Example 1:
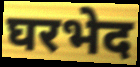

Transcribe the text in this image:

घरभेद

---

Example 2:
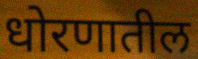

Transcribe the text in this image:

धोरणातील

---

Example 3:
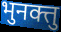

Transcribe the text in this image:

भुनक्तु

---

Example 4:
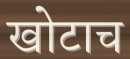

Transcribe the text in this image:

खोटाच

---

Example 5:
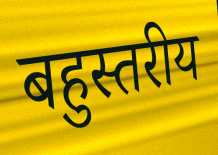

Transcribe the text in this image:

बहुस्तरीय